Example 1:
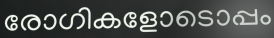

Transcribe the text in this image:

രോഗികളോടൊപ്പം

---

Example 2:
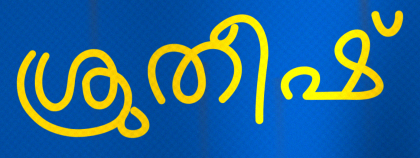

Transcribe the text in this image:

ശ്രുതീഷ്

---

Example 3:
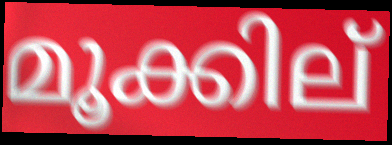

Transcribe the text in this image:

മൂക്കില്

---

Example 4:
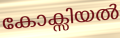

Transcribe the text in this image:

കോക്സിയൽ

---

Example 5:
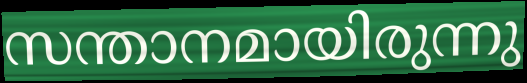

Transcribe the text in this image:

സന്താനമായിരുന്നു